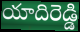
యాదిరెడ్డి